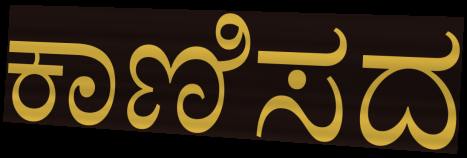
ಕಾಣಿಸದ